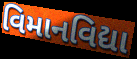
વિમાનવિદ્યા